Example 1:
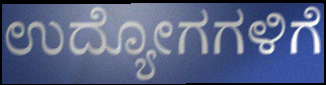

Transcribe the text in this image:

ಉದ್ಯೋಗಗಳಿಗೆ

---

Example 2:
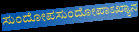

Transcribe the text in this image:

ಸುಂದೋಪಸುಂದೋಪಾಽಖ್ಯಾನ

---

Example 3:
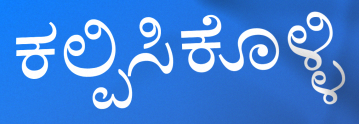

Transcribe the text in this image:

ಕಲ್ಪಿಸಿಕೊಳ್ಳಿ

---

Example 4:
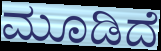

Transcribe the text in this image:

ಮೂಡಿದೆ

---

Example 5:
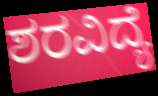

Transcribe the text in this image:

ಶರವಿದ್ಯೆ